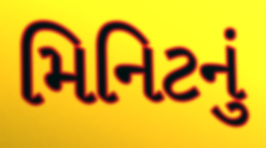
મિનિટનું